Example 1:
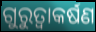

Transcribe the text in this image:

ଗୁରୁତ୍ଵାକର୍ଷଣ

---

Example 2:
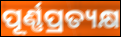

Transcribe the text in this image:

ପୂର୍ଣ୍ଣପ୍ରତ୍ୟକ୍ଷ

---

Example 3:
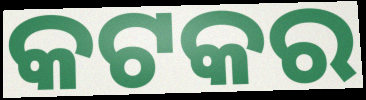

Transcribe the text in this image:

କଟକର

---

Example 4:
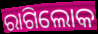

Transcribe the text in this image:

ରାଗିଲୋକ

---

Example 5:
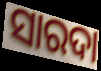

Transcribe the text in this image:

ସାରଦା